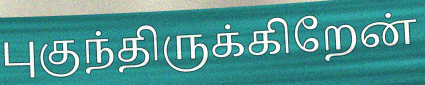
புகுந்திருக்கிறேன்